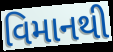
વિમાનથી